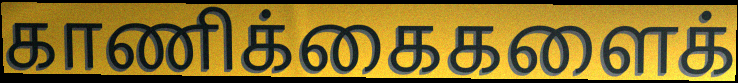
காணிக்கைகளைக்